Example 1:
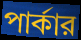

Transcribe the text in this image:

পার্কার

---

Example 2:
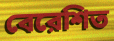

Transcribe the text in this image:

বেরেশিত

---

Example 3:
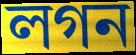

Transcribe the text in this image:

লগন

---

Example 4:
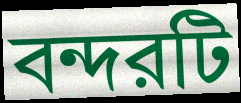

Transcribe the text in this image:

বন্দরটি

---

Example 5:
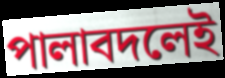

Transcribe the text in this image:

পালাবদলেই